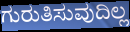
ಗುರುತಿಸುವುದಿಲ್ಲ